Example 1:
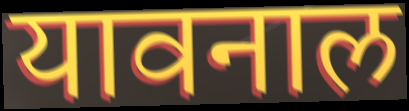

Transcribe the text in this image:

यावनाल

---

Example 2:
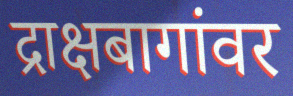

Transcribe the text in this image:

द्राक्षबागांवर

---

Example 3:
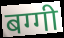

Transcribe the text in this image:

बग्गी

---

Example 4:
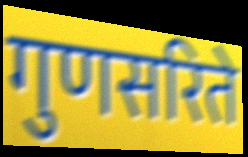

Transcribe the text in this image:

गुणसरिते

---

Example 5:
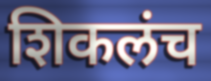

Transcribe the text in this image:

शिकलंच